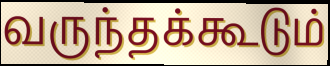
வருந்தக்கூடும்